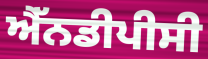
ਐੱਨਡੀਪੀਸੀ